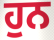
ਹੁਨ